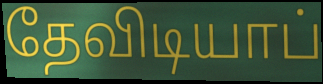
தேவிடியாப்